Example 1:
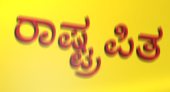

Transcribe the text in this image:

ರಾಷ್ಟ್ರಪಿತ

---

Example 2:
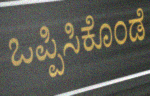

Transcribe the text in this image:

ಒಪ್ಪಿಸಿಕೊಂಡೆ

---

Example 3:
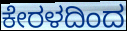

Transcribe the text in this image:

ಕೇರಳದಿಂದ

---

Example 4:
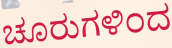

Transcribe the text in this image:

ಚೂರುಗಳಿಂದ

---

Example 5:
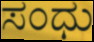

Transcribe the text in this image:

ಸಂಧು